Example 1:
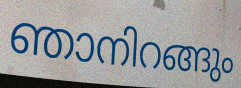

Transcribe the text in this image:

ഞാനിറങ്ങും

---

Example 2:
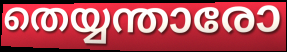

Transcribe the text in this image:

തെയ്യന്താരോ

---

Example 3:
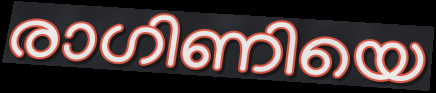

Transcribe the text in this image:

രാഗിണിയെ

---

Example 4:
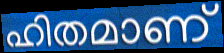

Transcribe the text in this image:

ഹിതമാണ്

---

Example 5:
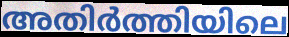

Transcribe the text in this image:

അതിർത്തിയിലെ